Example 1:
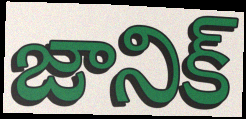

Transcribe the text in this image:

జానిక్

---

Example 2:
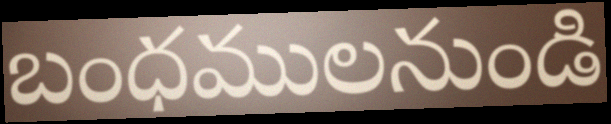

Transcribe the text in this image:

బంధములనుండి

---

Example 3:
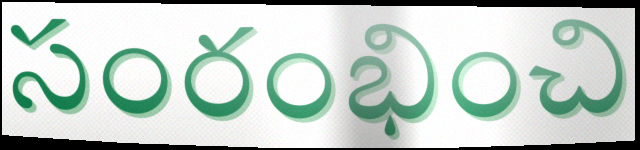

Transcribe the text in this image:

సంరంభించి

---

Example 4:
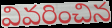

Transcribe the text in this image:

వివరించిన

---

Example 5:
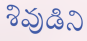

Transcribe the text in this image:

శివుడిని